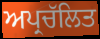
ਅਪ੍ਰਚੱਲਿਤ